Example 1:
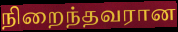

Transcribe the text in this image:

நிறைந்தவரான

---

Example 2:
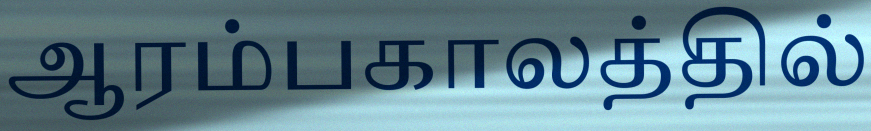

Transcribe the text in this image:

ஆரம்பகாலத்தில்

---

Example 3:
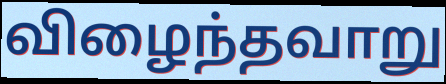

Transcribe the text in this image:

விழைந்தவாறு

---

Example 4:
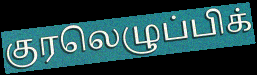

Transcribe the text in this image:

குரலெழுப்பிக்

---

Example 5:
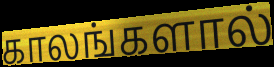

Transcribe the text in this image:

காலங்களால்